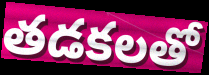
తడకలతో